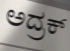
ಅದ್ರಕ್